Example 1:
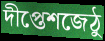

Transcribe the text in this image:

দীপ্তেশজেঠু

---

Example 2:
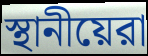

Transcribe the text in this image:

স্থানীয়েরা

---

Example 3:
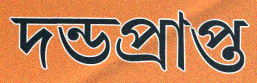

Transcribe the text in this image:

দন্ডপ্রাপ্ত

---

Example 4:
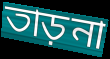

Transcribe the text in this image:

তাড়না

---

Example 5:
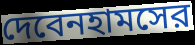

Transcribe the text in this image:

দেবেনহামসের